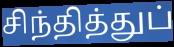
சிந்தித்துப்